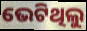
ଭେଟିଥିଲୁ